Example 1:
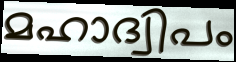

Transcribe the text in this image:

മഹാദ്വിപം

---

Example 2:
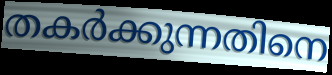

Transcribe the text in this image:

തകർക്കുന്നതിനെ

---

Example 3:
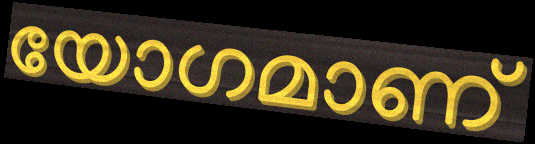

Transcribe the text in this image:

യോഗമാണ്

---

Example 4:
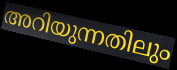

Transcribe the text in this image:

അറിയുന്നതിലും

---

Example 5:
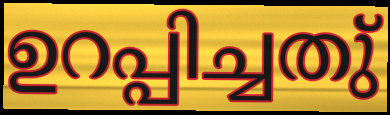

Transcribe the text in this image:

ഉറപ്പിച്ചതു്